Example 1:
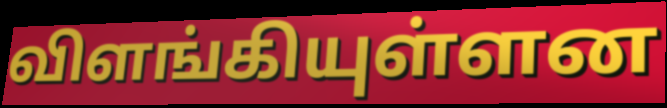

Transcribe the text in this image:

விளங்கியுள்ளன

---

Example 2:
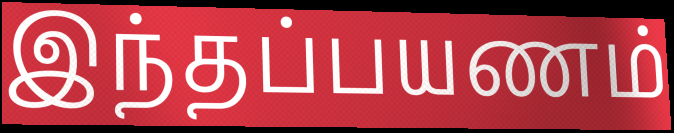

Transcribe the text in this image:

இந்தப்பயணம்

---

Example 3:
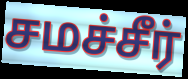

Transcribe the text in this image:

சமச்சீர்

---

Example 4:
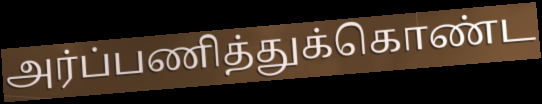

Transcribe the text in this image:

அர்ப்பணித்துக்கொண்ட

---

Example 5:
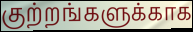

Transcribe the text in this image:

குற்றங்களுக்காக